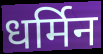
धर्मिन